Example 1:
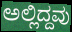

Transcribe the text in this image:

ಅಲ್ಲಿದ್ದವು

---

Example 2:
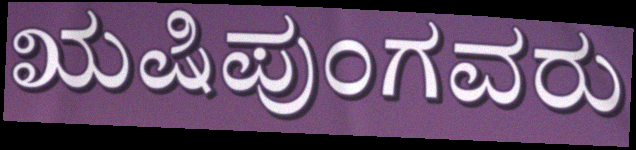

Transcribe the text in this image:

ಋಷಿಪುಂಗವರು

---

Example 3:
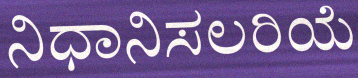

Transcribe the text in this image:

ನಿಧಾನಿಸಲರಿಯೆ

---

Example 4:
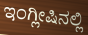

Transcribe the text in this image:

ಇಂಗ್ಲೀಷಿನಲ್ಲಿ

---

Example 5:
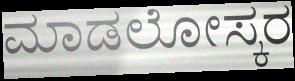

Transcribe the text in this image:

ಮಾಡಲೋಸ್ಕರ